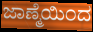
ಜಾಣ್ಮೆಯಿಂದ